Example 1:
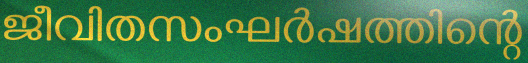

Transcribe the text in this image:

ജീവിതസംഘർഷത്തിന്റെ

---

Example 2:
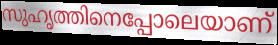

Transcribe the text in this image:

സുഹൃത്തിനെപ്പോലെയാണ്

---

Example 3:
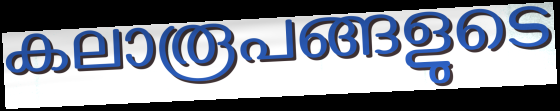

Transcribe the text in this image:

കലാരൂപങ്ങളുടെ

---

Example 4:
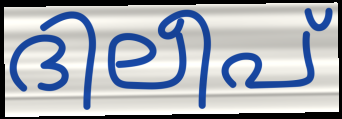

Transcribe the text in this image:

ദിലീപ്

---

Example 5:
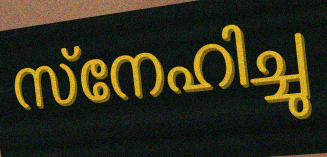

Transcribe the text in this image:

സ്‌നേഹിച്ചു